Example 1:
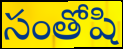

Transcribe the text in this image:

సంతోషి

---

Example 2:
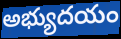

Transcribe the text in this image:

అభ్యుదయం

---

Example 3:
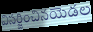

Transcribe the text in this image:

విసర్జించినయెడల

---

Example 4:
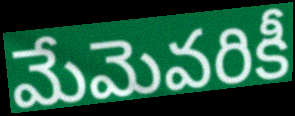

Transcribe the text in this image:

మేమెవరికీ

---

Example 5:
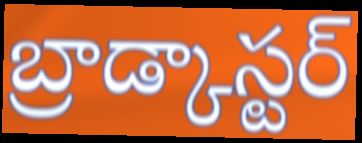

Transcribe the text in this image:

బ్రాడ్కాస్టర్